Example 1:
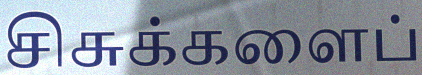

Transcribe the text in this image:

சிசுக்களைப்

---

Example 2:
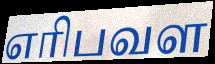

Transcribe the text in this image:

எரிபவள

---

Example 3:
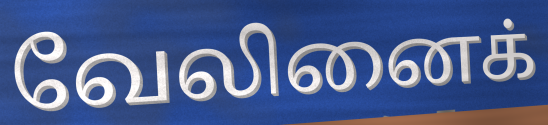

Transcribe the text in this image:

வேலினைக்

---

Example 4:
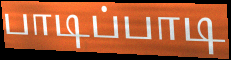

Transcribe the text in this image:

பாடிப்பாடி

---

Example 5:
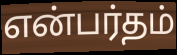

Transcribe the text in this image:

என்பர்தம்